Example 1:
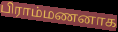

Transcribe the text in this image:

பிராம்மணனாக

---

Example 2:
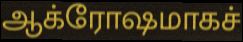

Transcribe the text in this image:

ஆக்ரோஷமாகச்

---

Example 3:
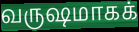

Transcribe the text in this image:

வருஷமாகக்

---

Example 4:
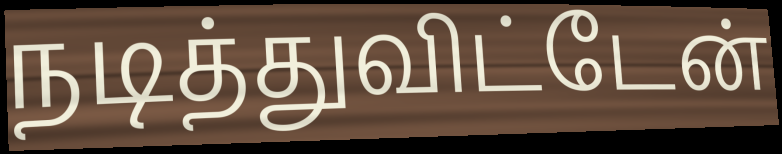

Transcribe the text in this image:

நடித்துவிட்டேன்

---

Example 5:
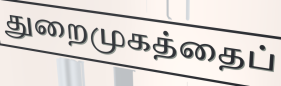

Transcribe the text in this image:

துறைமுகத்தைப்